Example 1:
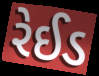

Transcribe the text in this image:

રેઈડ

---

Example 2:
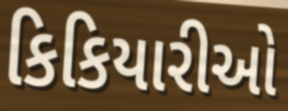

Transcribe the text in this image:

કિકિયારીઓ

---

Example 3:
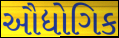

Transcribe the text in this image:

ઔદ્યોગિક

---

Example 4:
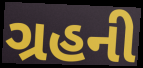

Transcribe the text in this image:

ગ્રહની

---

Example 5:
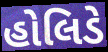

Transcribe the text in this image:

હોલિડે